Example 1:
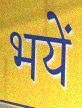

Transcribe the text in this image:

भयें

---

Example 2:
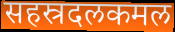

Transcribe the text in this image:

सहस्रदलकमल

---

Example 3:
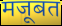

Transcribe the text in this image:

मजूबत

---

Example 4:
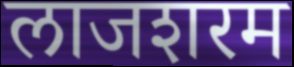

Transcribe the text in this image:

लाजशरम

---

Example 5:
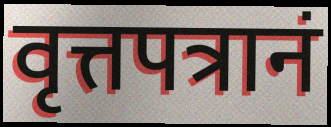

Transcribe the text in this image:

वृत्तपत्रानं